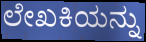
ಲೇಖಕಿಯನ್ನು